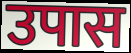
उपास